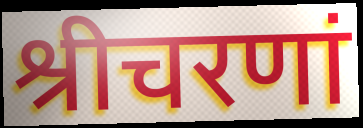
श्रीचरणां